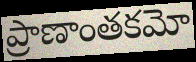
ప్రాణాంతకమో